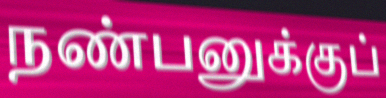
நண்பனுக்குப்